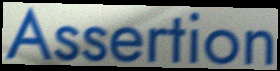
Assertion